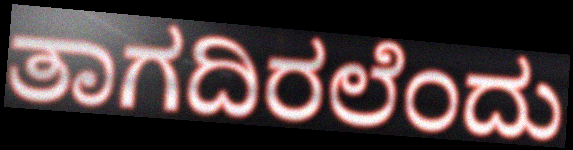
ತಾಗದಿರಲೆಂದು